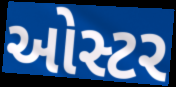
ઓસ્ટર